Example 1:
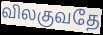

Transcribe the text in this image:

விலகுவதே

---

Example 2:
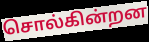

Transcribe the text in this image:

சொல்கின்றன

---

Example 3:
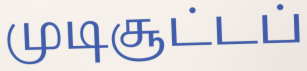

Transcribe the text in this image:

முடிசூட்டப்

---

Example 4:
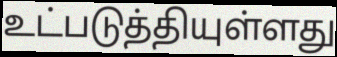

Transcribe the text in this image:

உட்படுத்தியுள்ளது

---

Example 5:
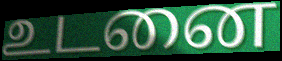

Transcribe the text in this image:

உடனை